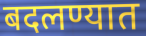
बदलण्यात